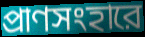
প্রাণসংহারে